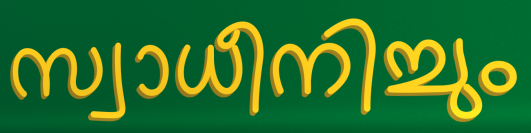
സ്വാധീനിച്ചും